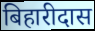
बिहारीदास